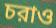
চরাও